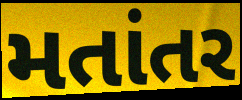
મતાંતર